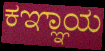
ಕಞ್ಞಾಯ